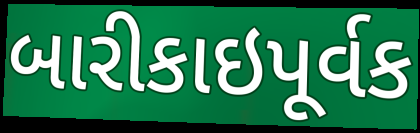
બારીકાઇપૂર્વક